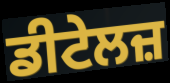
ਡੀਟੇਲਜ਼